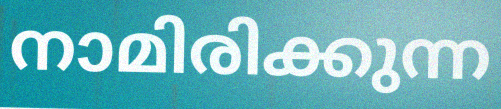
നാമിരിക്കുന്ന